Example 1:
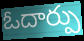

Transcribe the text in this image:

ఓదార్పు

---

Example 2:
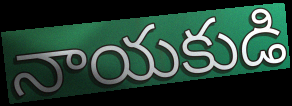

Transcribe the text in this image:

నాయకుడి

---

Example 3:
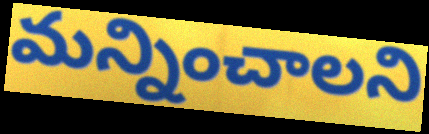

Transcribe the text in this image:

మన్నించాలని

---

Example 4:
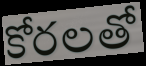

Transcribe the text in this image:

కోరలతో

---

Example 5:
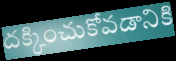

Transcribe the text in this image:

దక్కించుకోవడానికి